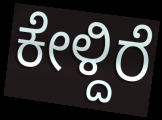
ಕೇಳ್ದಿರೆ